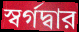
স্বর্গদ্বার